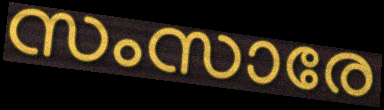
സംസാരേ